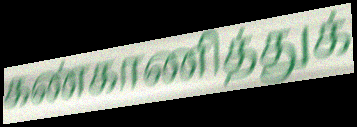
கண்காணித்துக்